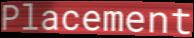
Placement